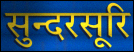
सुन्दरसूरि